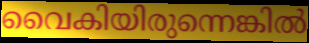
വൈകിയിരുന്നെങ്കിൽ